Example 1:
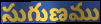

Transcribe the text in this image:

సుగుణము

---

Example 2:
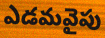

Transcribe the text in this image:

ఎడమవైపు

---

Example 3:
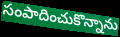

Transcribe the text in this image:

సంపాదించుకొన్నాను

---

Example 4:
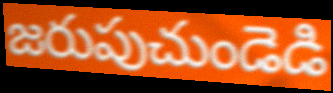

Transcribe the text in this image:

జరుపుచుండెడి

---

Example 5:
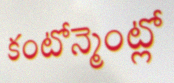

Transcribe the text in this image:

కంటోన్మెంట్లో